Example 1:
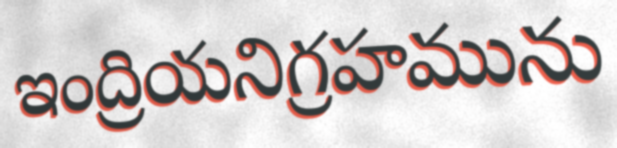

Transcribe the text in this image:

ఇంద్రియనిగ్రహమును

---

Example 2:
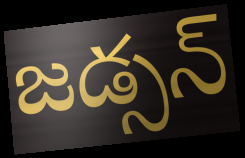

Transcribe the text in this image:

జడ్సన్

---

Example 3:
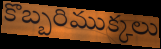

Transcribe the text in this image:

కొబ్బరిముక్కలు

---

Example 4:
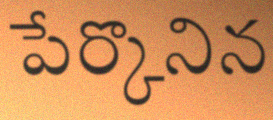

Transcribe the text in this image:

పేర్కొనిన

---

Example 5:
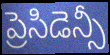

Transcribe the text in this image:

ప్రెసిడెన్సీ